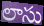
లాసు